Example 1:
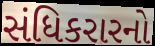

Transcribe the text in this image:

સંધિકરારનો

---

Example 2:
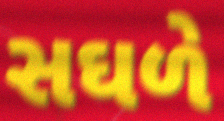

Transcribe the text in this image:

સઘળે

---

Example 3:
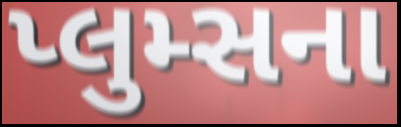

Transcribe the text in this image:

પ્લુમ્સના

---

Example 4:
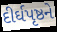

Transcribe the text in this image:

દીર્ઘપૃષ્ઠને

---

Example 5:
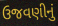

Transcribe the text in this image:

ઉજવણીનું